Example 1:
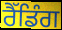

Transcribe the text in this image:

ਰੈੱਡਿੰਗ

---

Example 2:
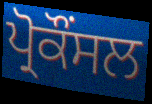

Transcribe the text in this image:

ਪ੍ਰੋਕੌਂਸਲ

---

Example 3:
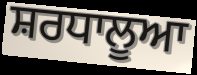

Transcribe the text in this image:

ਸ਼ਰਧਾਲੂਆ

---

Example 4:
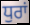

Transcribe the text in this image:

ਧੁਰਾਂ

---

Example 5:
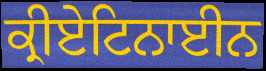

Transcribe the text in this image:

ਕ੍ਰੀਏਟਿਨਾਈਨ